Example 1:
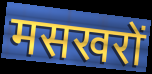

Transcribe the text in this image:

मसखरों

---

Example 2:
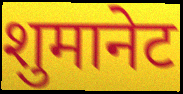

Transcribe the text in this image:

शुमानेट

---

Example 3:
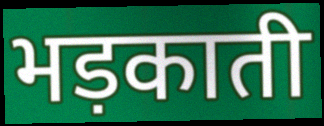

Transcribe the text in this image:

भड़काती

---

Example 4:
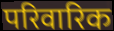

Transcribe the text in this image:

परिवारिक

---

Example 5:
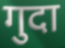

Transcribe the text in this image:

गुदा